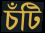
চঁটি